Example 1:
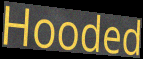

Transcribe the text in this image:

Hooded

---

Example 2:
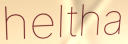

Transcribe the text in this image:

heltha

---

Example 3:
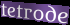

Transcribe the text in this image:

tetrode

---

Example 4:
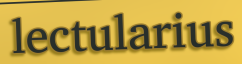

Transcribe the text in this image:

lectularius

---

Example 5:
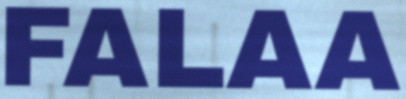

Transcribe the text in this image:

FALAA